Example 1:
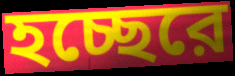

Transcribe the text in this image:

হচ্ছেরে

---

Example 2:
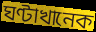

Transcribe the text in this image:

ঘণ্টাখানেক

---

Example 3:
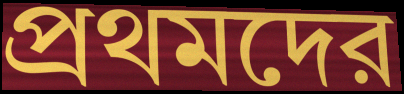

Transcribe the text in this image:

প্রথমদের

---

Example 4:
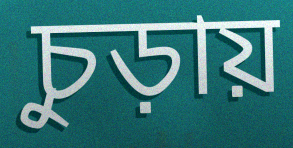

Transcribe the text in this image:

চুড়ায়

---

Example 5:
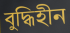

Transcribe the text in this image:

বুদ্ধিহীন